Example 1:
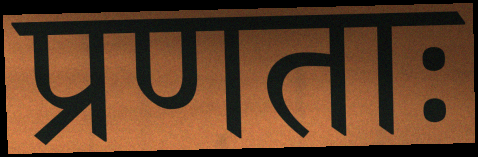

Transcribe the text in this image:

प्रणताः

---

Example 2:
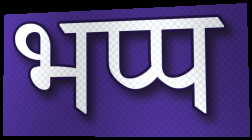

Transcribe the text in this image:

भप्प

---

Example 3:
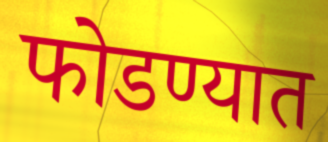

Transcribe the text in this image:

फोडण्यात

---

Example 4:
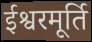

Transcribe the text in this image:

ईश्वरमूर्ति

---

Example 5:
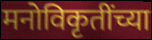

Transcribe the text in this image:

मनोविकृतींच्या